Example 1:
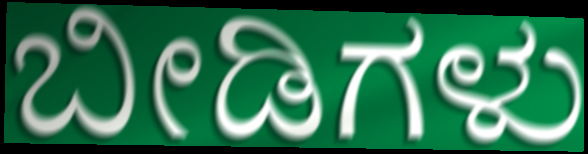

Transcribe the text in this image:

ಬೀಡಿಗಳು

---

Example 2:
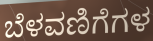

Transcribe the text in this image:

ಬೆಳವಣಿಗೆಗಳ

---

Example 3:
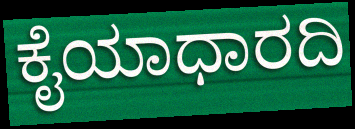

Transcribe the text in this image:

ಕೈಯಾಧಾರದಿ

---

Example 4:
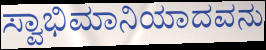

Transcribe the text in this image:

ಸ್ವಾಭಿಮಾನಿಯಾದವನು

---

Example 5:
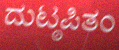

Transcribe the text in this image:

ದುಟ್ಠಪಿತಂ